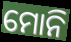
ମୋନି